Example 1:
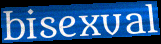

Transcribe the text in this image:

bisexual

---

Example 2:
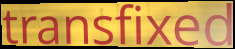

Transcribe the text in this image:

transfixed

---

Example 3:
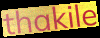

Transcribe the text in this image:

thakile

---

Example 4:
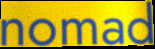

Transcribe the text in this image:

nomad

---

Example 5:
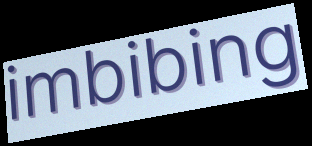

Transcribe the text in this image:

imbibing